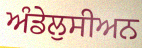
ਅੰਡੇਲੁਸੀਅਨ